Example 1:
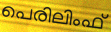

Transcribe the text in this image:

പെരിലിംഫ്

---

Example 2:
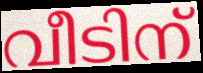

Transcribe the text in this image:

വീടിന്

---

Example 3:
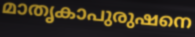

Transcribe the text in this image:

മാതൃകാപുരുഷനെ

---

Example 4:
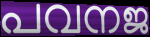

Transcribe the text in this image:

പവനജ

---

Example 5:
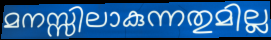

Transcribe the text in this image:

മനസ്സിലാകുന്നതുമില്ല